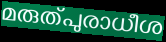
മരുത്പുരാധീശ